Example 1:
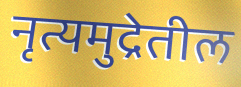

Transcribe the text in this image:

नृत्यमुद्रेतील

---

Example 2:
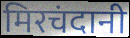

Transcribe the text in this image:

मिरचंदानी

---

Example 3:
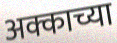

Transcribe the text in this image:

अक्काच्या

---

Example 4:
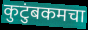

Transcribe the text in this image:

कुटुंबकमचा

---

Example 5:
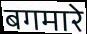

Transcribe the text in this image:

बगमारे